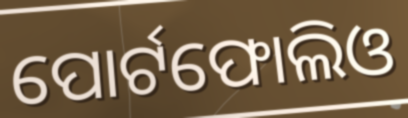
ପୋର୍ଟଫୋଲିଓ